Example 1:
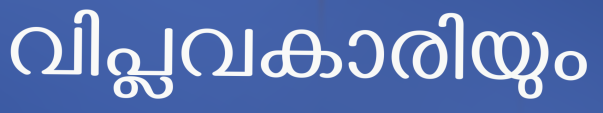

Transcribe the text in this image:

വിപ്ലവകാരിയും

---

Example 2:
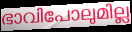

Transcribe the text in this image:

ഭാവിപോലുമില്ല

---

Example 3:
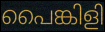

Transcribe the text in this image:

പൈങ്കിളി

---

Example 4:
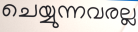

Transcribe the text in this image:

ചെയ്യുന്നവരല്ല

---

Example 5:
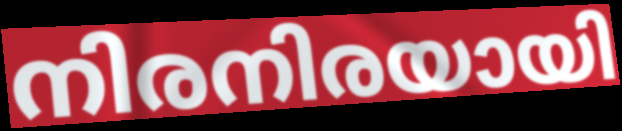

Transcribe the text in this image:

നിരനിരയായി